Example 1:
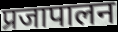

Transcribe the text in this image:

प्रजापालन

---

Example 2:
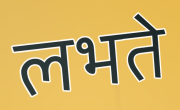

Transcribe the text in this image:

लभते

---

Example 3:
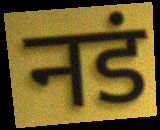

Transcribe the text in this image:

नडं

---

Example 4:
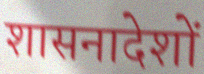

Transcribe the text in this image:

शासनादेशों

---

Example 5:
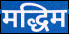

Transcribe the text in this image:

मद्धिम